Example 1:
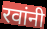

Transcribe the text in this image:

रवांनी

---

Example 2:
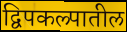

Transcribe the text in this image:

द्विपकल्पातील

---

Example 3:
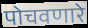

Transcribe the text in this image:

पोचवणारे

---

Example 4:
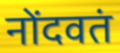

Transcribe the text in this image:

नोंदवतं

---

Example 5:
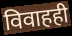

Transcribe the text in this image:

विवाहही